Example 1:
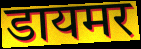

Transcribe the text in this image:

डायमर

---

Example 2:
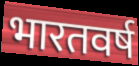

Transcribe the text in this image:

भारतवर्ष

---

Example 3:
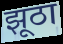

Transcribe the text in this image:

झूठा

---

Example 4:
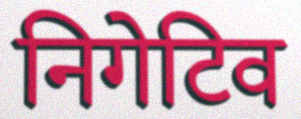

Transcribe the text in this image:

निगेटिव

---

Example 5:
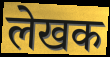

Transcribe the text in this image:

लेखक